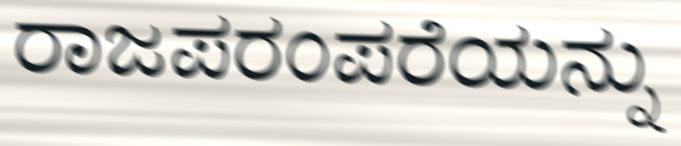
ರಾಜಪರಂಪರೆಯನ್ನು